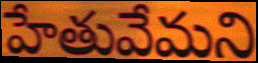
హేతువేమని